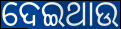
ଦେଇଥାଉ